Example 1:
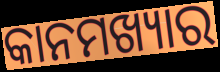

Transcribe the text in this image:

କାନମଖ୍ୟାର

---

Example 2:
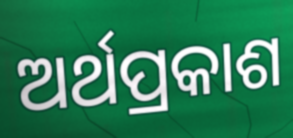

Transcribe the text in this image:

ଅର୍ଥପ୍ରକାଶ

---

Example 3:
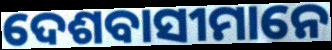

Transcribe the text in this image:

ଦେଶବାସୀମାନେ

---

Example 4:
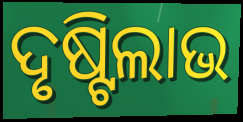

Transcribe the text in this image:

ଦୃଷ୍ଟିଲାଭ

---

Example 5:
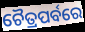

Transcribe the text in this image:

ଚୈତ୍ରପର୍ବରେ